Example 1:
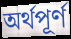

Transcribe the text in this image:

অর্থপূর্ণ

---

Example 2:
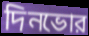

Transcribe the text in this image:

দিনভোর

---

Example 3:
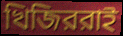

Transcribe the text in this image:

খিজিররাই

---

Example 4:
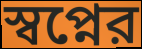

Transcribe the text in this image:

স্বপ্নের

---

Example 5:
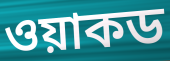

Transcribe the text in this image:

ওয়াকড